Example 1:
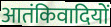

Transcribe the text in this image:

आतंकिवादियों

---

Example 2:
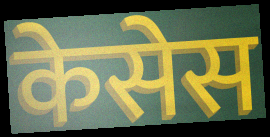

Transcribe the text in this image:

केसेस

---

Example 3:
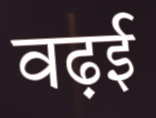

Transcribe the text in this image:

वढ़ई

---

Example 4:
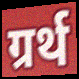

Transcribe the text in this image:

ग्रर्थ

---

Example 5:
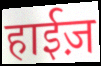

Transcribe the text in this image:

हाईज़